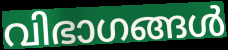
വിഭാഗങ്ങൾ